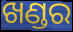
ଖଣ୍ଡର